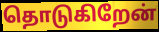
தொடுகிறேன்